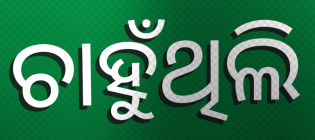
ଚାହୁଁଥିଲି